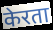
केरता